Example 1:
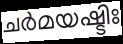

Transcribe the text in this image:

ചർമയഷ്ടിഃ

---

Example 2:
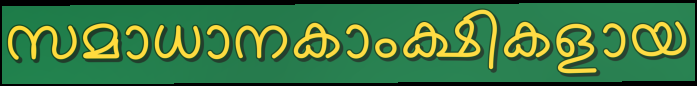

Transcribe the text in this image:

സമാധാനകാംക്ഷികളായ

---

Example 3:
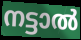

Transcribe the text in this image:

നട്ടാൽ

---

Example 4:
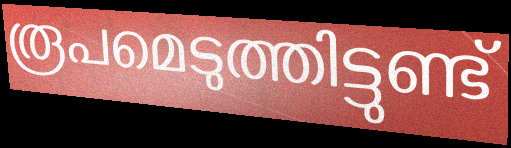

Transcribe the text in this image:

രൂപമെടുത്തിട്ടുണ്ട്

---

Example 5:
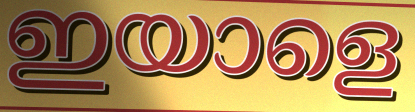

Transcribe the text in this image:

ഇയാളെ